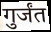
गुर्जंत